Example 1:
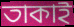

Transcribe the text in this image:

তাকাই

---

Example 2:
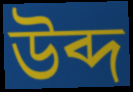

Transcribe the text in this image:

উব্দ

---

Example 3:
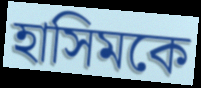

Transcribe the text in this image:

হাসিমকে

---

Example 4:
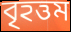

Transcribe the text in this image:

বৃহত্তম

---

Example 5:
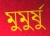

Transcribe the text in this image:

মুমুর্ষু